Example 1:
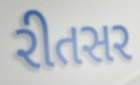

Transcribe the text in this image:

રીતસર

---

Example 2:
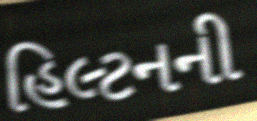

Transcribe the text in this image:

હિલ્ટનની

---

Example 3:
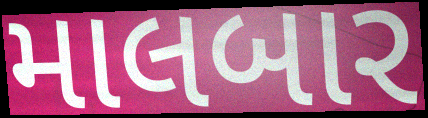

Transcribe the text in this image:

માલબાર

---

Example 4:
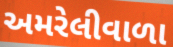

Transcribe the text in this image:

અમરેલીવાળા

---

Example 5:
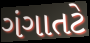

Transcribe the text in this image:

ગંગાતટે